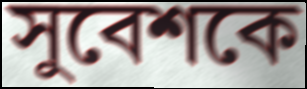
সুবেশকে